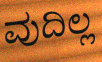
ವುದಿಲ್ಲ